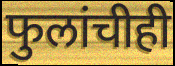
फुलांचीही